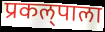
प्रकल्पाला